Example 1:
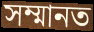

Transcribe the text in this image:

সম্মানত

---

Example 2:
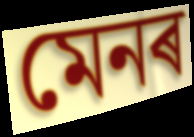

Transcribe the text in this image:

মেনৰ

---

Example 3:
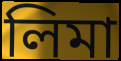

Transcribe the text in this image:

লিমা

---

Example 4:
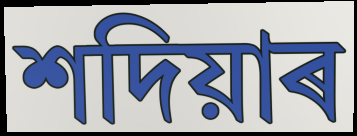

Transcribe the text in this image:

শদিয়াৰ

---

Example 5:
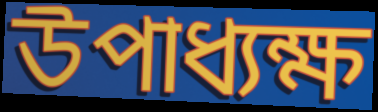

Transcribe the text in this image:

উপাধ্যক্ষ